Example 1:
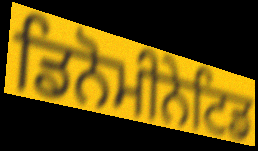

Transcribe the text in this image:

ਡਿਨੋਮੀਨੇਟਿਡ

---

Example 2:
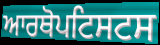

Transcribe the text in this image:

ਆਰਥੋਪਟਿਸਟਸ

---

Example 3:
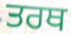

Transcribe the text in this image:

ਤਰਥ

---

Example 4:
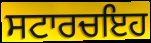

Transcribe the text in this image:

ਸਟਾਰਚਇਹ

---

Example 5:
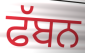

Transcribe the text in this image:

ਫੱਬਨ